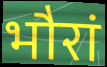
भौरां